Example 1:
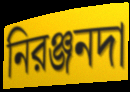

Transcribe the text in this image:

নিরঞ্জনদা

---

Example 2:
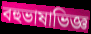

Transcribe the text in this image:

বহুভাষাভিজ্ঞ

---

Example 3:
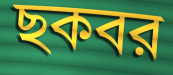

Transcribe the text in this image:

ছকবর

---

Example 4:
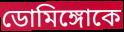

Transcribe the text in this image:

ডোমিঙ্গোকে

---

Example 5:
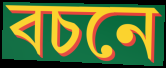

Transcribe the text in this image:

বচনে